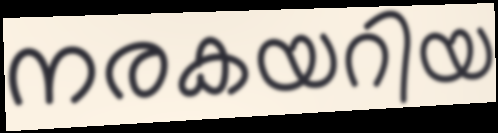
നരകയറിയ